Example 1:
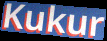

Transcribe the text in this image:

Kukur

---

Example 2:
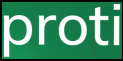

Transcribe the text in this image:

proti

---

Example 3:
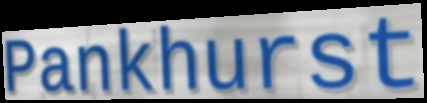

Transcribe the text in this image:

Pankhurst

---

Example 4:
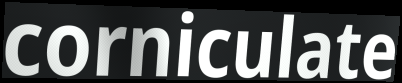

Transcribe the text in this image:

corniculate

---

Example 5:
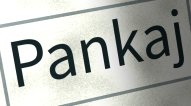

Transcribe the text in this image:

Pankaj